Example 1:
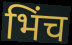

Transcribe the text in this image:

भिंच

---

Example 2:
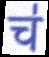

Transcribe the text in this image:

च॑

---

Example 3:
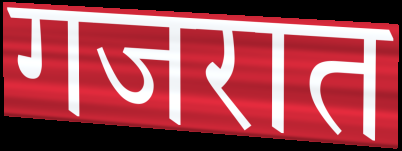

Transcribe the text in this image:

गजरात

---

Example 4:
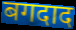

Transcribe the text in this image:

बगदाद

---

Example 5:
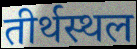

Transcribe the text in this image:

तीर्थस्थल